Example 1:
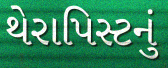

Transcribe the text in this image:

થેરાપિસ્ટનું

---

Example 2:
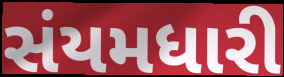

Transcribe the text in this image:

સંયમધારી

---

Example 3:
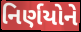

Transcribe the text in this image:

નિર્ણયોને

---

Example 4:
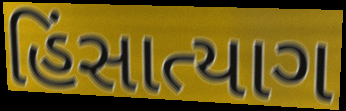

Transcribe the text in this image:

હિંસાત્યાગ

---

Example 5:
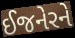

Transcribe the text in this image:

ઈજનેરને